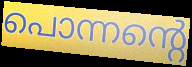
പൊന്നന്റെ